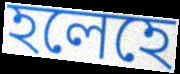
হলেহে